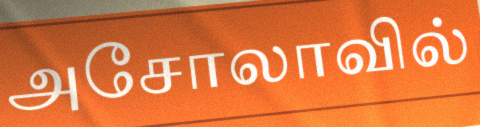
அசோலாவில்